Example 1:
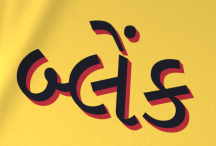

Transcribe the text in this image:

બ્લેંક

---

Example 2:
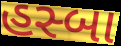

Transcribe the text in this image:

હસ્બા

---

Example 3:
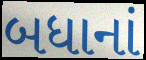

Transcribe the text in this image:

બધાનાં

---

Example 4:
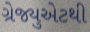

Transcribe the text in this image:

ગ્રેજ્યુએટથી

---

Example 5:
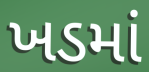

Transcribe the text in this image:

ખડમાં